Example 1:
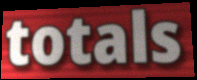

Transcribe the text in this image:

totals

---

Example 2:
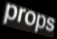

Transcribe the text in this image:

props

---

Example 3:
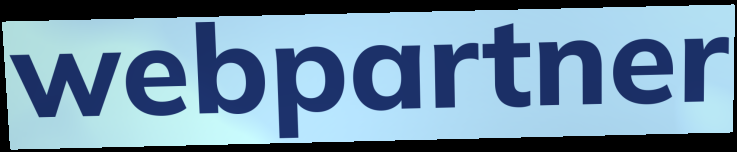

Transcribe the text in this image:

webpartner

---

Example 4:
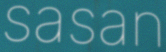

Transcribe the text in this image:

sasan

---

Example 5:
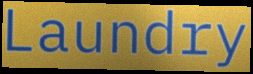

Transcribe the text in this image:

Laundry